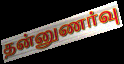
தன்னுணர்வு